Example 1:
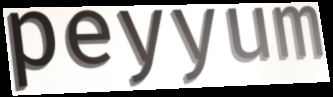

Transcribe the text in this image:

peyyum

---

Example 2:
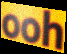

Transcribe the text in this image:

ooh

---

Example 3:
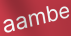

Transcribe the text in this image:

aambe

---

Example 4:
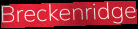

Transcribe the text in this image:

Breckenridge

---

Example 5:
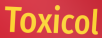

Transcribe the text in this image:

Toxicol